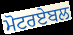
ਮੋਟਰਏਬਲ